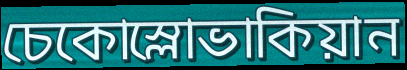
চেকোস্লোভাকিয়ান